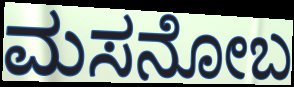
ಮಸನೋಬ